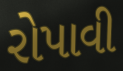
રોપાવી